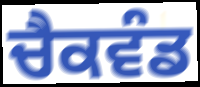
ਚੈਕਵੰਡ